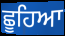
ਛੂਹਿਆ